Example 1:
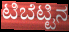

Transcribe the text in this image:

ಟಿಬೆಟ್ಟಿನ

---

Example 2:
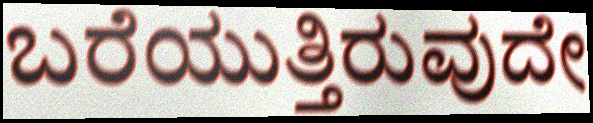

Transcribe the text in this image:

ಬರೆಯುತ್ತಿರುವುದೇ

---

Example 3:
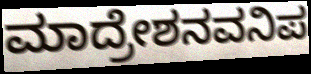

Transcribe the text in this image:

ಮಾದ್ರೇಶನವನಿಪ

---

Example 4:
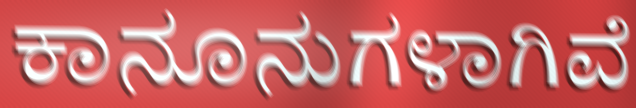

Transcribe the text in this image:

ಕಾನೂನುಗಳಾಗಿವೆ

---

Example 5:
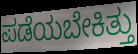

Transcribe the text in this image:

ಪಡೆಯಬೇಕಿತ್ತು